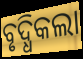
ବୃଦ୍ଧିକଲା